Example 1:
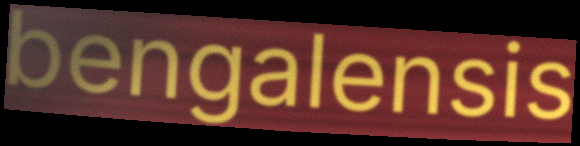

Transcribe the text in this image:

bengalensis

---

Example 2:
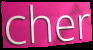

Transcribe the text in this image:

cher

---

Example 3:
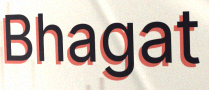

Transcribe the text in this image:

Bhagat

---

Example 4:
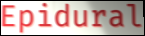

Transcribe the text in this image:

Epidural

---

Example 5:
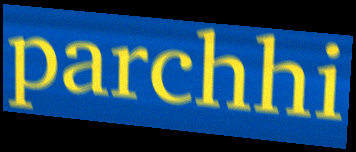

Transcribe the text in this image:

parchhi